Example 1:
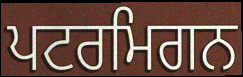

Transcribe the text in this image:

ਪਟਰਮਿਗਨ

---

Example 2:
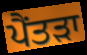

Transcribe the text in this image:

ਪੈਂਤੜਾ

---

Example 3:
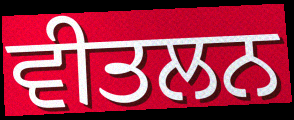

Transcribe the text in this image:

ਵੀਤਲਨ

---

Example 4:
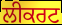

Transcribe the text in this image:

ਲੀਕਰਟ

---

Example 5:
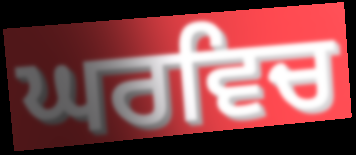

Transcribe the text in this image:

ਘਰਵਿਚ